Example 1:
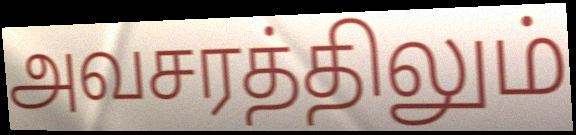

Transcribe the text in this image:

அவசரத்திலும்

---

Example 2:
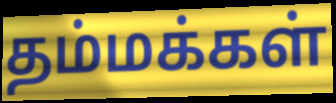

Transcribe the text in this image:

தம்மக்கள்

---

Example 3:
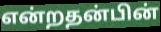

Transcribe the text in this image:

என்றதன்பின்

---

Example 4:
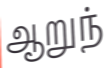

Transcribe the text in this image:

ஆறுந்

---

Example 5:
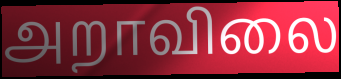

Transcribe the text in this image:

அறாவிலை